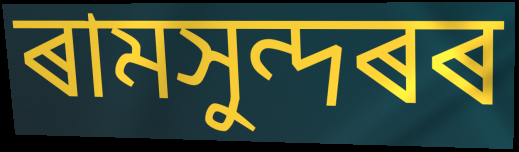
ৰামসুন্দৰৰ